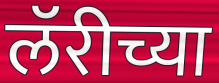
लॅरीच्या